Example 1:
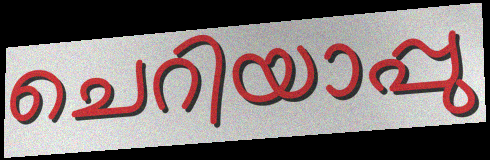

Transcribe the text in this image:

ചെറിയാപ്പു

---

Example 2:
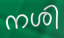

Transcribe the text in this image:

നശി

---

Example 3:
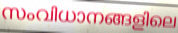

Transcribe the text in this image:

സംവിധാനങ്ങളിലെ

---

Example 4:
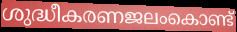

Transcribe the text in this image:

ശുദ്ധീകരണജലംകൊണ്ട്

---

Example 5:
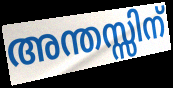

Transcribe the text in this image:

അന്തസ്സിന്